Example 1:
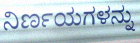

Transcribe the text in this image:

ನಿರ್ಣಯಗಳನ್ನು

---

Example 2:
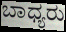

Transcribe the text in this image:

ಬಾಧ್ಯರು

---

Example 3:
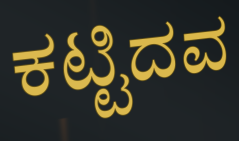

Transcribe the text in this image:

ಕಟ್ಟಿದವ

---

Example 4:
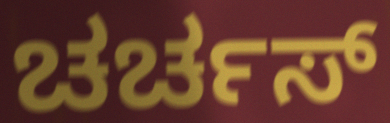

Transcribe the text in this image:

ಚರ್ಚಸ್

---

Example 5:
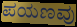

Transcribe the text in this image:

ಪಯಣವು